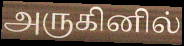
அருகினில்